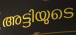
അട്ടിയുടെ